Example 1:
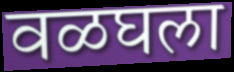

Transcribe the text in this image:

वळघला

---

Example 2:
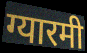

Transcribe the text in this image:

ग्यारमी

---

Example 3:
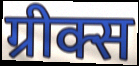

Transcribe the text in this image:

ग्रीक्स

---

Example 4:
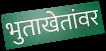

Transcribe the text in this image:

भुताखेतांवर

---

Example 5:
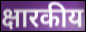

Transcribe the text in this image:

क्षारकीय